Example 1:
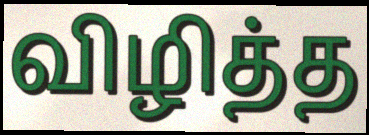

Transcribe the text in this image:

விழித்த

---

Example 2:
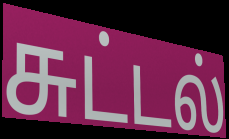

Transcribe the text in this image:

சுட்டல்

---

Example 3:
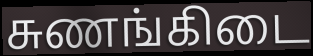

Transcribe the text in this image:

சுணங்கிடை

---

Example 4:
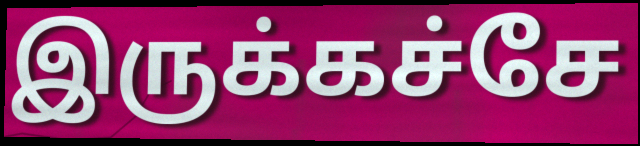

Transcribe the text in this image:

இருக்கச்சே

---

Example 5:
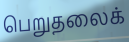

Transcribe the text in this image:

பெறுதலைக்